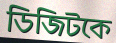
ডিজিটকে